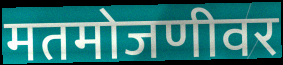
मतमोजणीवर